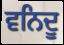
ਵਨਿਦੂ